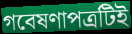
গবেষণাপত্রটিই